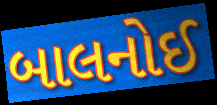
બાલનોઈ